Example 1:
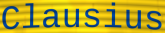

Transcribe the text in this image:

Clausius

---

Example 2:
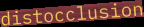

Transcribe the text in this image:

distocclusion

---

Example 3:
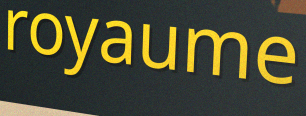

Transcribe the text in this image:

royaume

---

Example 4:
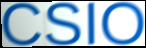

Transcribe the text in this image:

CSIO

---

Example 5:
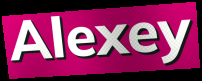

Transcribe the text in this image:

Alexey